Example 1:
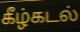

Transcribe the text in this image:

கீழ்கடல்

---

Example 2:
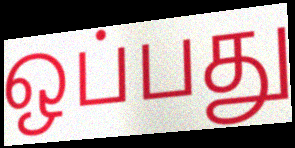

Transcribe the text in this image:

ஒப்பது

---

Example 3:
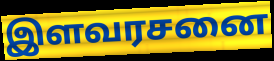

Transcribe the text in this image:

இளவரசனை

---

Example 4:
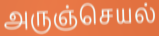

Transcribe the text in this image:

அருஞ்செயல்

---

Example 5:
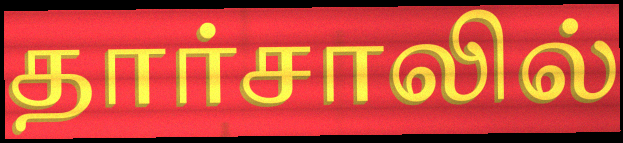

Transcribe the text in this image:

தார்சாலில்